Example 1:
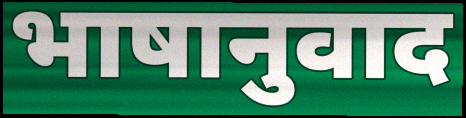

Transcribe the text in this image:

भाषानुवाद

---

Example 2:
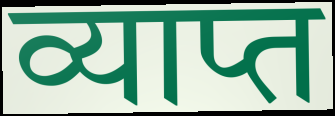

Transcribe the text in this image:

व्‍याप्‍त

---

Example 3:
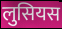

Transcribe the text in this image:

लुसियस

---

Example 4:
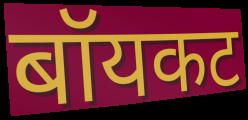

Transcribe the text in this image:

बॉयकट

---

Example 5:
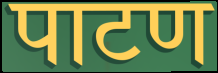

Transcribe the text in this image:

पाटण